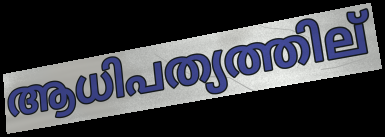
ആധിപത്യത്തില്